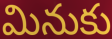
మినుకు